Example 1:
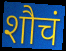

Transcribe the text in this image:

शौचं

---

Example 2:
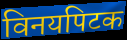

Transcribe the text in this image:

विनयपिटक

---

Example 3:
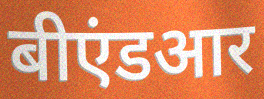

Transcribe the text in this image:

बीएंडआर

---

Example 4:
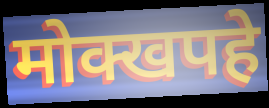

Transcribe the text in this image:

मोक्खपहे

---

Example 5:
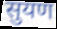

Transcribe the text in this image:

सुयण